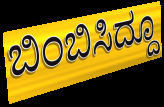
ಬಿಂಬಿಸಿದ್ದೂ